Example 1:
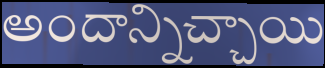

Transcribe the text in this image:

అందాన్నిచ్చాయి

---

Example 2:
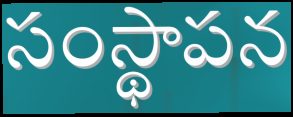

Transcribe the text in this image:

సంస్థాపన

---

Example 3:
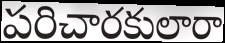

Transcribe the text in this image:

పరిచారకులారా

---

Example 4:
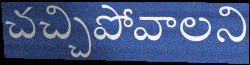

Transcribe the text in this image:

చచ్చిపోవాలని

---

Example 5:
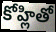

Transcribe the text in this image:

కోహ్లితో